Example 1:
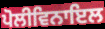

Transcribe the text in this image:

ਪੋਲੀਵਿਨਾਇਲ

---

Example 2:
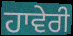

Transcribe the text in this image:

ਹਾਵੇਰੀ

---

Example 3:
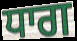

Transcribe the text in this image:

ਧਾਗ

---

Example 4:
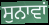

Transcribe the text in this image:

ਸੁਨਾਵਾਂ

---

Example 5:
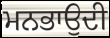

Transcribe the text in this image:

ਮਨਭਾਉਦੀ